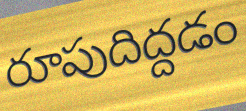
రూపుదిద్దడం